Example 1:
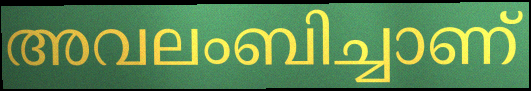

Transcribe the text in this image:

അവലംബിച്ചാണ്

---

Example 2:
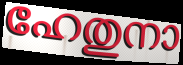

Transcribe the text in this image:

ഹേതുനാ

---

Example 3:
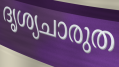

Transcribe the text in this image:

ദൃശ്യചാരുത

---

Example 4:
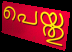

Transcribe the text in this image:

പെയ്തു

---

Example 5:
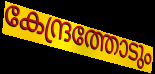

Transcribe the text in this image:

കേന്ദ്രത്തോടും